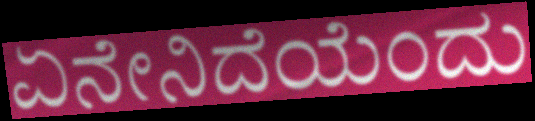
ಏನೇನಿದೆಯೆಂದು